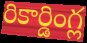
రికార్డింగ్ల